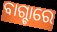
ବାଗ୍ଚାରେ